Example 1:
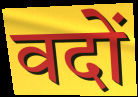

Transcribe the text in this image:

वदों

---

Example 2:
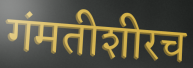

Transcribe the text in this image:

गंमतीशीरच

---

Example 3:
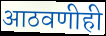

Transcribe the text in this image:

आठवणीही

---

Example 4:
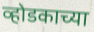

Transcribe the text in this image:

व्होडकाच्या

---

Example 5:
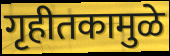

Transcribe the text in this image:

गृहीतकामुळे